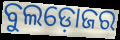
ବୁଲଡ଼ୋଜର